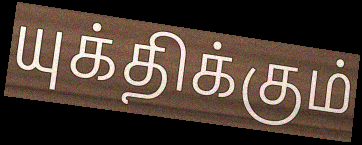
யுக்திக்கும்